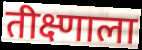
तीक्ष्णाला